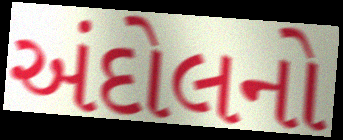
અંદોલનો